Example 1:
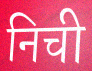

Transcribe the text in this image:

निची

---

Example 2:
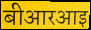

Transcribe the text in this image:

बीआरआइ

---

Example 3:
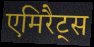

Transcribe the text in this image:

एमिरैट्स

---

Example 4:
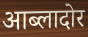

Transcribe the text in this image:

आब्लादोर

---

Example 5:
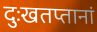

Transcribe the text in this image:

दुःखतप्तानां